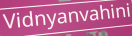
Vidnyanvahini